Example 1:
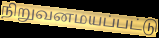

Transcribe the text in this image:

நிறுவனமயப்பட்டு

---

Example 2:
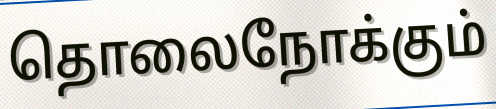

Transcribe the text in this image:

தொலைநோக்கும்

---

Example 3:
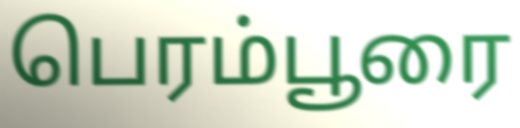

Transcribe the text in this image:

பெரம்பூரை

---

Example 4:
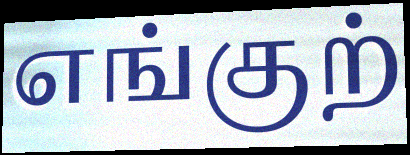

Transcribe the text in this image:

எங்குற்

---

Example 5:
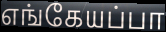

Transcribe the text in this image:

எங்கேயப்பா